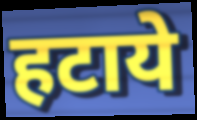
हटाये